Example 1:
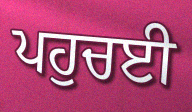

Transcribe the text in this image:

ਪਹੁਚਈ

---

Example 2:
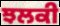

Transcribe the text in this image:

ਝਲਕੀ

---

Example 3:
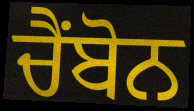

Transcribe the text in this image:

ਚੈਂਬੋਨ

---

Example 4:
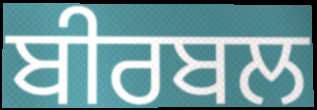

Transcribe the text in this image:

ਬੀਰਬਲ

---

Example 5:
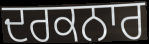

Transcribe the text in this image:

ਦਰਕਨਾਰ